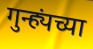
गुन्ह्यंच्या